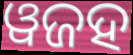
ୱଜହ